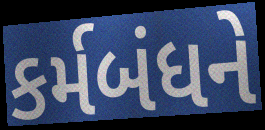
કર્મબંધને